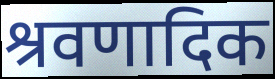
श्रवणादिक